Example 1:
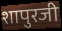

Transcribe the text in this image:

शापुरजी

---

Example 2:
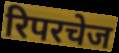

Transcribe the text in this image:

रिपरचेज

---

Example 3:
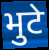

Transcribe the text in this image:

भुटे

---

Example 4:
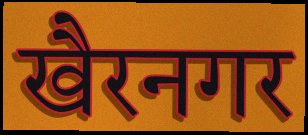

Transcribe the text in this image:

खैरनगर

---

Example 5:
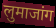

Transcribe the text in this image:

लुमाजांग